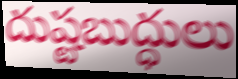
దుష్టబుద్ధులు